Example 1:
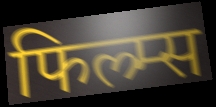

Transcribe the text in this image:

फिल्म्स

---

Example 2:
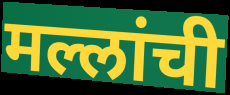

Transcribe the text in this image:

मल्लांची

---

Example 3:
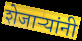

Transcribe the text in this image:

शेजाऱ्यांनी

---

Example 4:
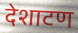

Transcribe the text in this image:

देशाटण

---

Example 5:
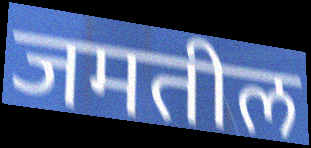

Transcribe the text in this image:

जमतील